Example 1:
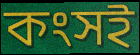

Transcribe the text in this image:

কংসই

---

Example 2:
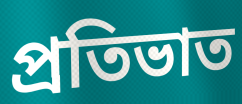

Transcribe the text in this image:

প্ৰতিভাত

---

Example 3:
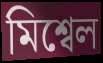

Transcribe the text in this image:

মিশ্বেল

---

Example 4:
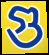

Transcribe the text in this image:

গু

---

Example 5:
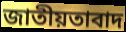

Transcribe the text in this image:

জাতীয়তাবাদ